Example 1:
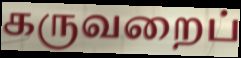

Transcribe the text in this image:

கருவறைப்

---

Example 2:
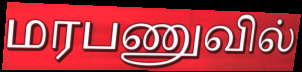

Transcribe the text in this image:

மரபணுவில்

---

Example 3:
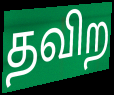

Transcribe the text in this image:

தவிற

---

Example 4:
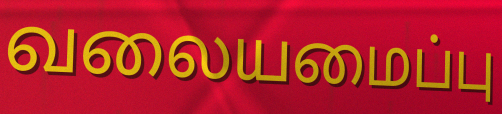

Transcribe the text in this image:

வலையமைப்பு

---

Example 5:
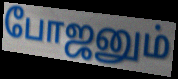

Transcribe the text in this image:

போஜனும்